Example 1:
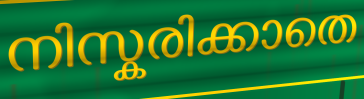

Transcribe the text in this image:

നിസ്കരിക്കാതെ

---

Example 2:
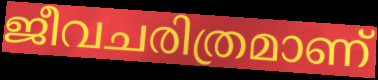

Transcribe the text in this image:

ജീവചരിത്രമാണ്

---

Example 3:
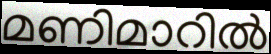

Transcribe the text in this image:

മണിമാറിൽ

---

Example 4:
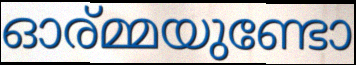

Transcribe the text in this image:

ഓര്മ്മയുണ്ടോ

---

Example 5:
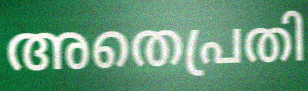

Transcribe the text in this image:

അതെപ്രതി